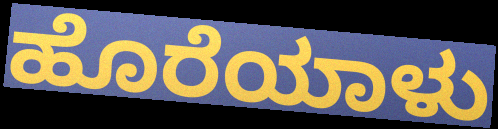
ಹೊರೆಯಾಳು